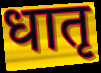
धातृ